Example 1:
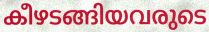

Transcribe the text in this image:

കീഴടങ്ങിയവരുടെ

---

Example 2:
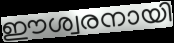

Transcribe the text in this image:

ഈശ്വരനായി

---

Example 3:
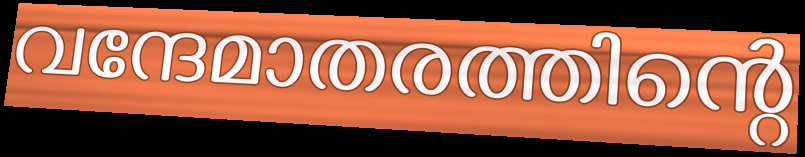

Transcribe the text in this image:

വന്ദേമാതരത്തിന്റെ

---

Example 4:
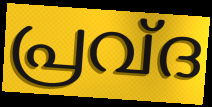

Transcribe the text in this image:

പ്രവ്ദ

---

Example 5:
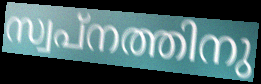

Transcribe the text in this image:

സ്വപ്നത്തിനു